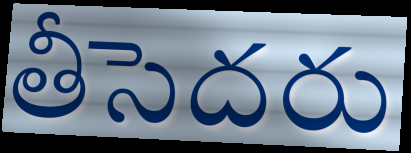
తీసెదరు